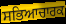
ਸਭਿਆਚਾਰਕ